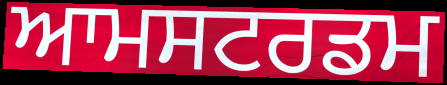
ਆਮਸਟਰਡਮ